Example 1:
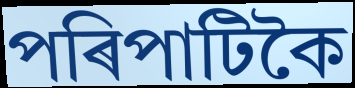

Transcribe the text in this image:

পৰিপাটিকৈ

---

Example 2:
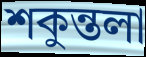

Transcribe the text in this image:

শকুন্তলা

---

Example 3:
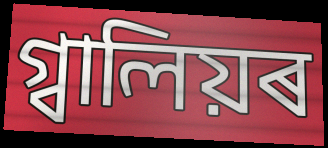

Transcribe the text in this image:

গ্বালিয়ৰ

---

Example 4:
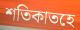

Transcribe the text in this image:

শতিকাতহে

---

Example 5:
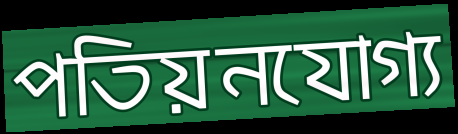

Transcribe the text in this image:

পতিয়নযোগ্য